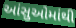
આંસુઓમાંથી